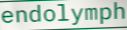
endolymph